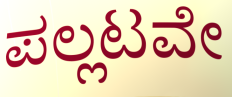
ಪಲ್ಲಟವೇ